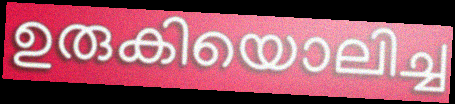
ഉരുകിയൊലിച്ച